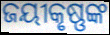
ଜୟୀକୃଷ୍ଣଙ୍କ